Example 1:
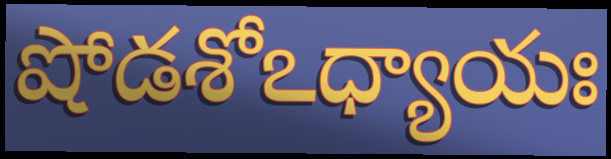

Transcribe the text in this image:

షోడశోఽధ్యాయః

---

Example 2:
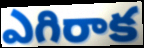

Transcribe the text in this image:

ఎగిరాక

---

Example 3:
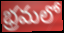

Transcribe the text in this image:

భ్రమలో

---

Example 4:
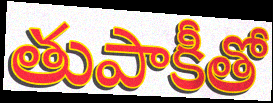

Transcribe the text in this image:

తుపాకీతో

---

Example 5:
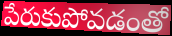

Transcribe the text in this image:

పేరుకుపోవడంతో